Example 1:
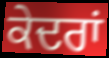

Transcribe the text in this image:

ਕੇਦਰਾਂ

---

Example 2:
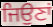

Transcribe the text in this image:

ਜਿਉਣਾਂ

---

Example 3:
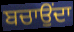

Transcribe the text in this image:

ਬਚਾਉਂਦਾ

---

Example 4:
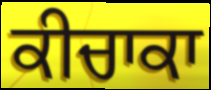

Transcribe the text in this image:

ਕੀਚਾਕਾ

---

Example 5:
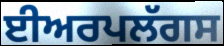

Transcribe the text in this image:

ਈਅਰਪਲੱਗਸ